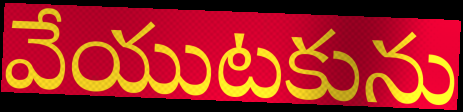
వేయుటకును